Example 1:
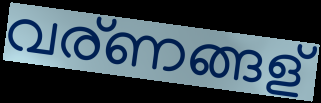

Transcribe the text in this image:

വര്ണങ്ങള്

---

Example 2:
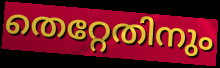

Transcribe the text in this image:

തെറ്റേതിനും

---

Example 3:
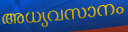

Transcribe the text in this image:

അധ്യവസാനം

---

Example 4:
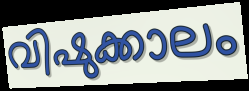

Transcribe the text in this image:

വിഷുക്കാലം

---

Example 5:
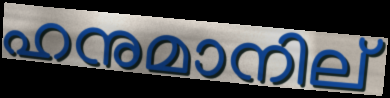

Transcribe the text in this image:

ഹനുമാനില്